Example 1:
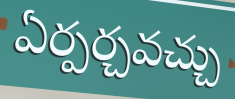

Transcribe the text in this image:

ఏర్పర్చవచ్చు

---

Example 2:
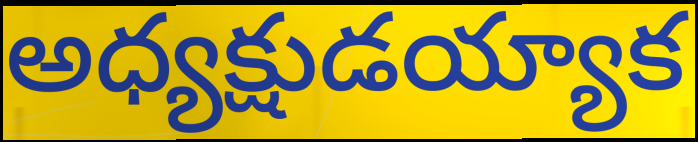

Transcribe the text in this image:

అధ్యక్షుడయ్యాక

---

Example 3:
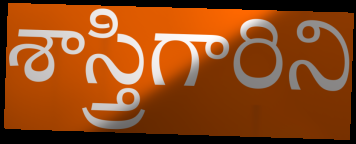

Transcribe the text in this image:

శాస్త్రిగారిని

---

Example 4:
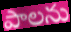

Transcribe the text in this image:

పాలను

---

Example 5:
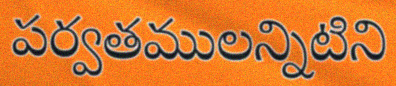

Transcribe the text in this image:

పర్వతములన్నిటిని